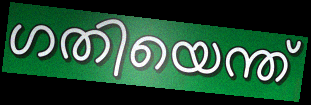
ഗതിയെന്ത്